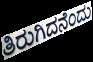
ತಿರುಗಿದನೆಂದು